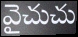
వైచుచు